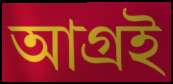
আগ্রই